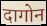
दागोन